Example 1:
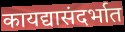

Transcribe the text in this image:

कायद्यासंदर्भात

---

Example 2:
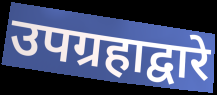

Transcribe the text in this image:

उपग्रहाद्वारे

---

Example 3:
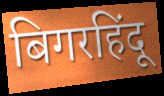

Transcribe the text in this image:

बिगरहिंदू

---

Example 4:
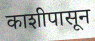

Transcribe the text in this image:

काशीपासून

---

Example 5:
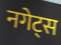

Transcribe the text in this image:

नगेट्स